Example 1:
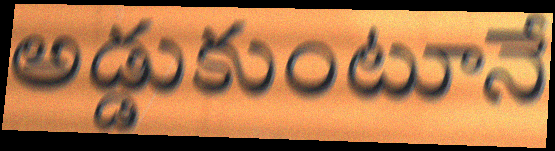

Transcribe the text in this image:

అడ్డుకుంటూనే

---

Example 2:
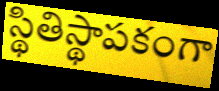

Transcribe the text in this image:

స్థితిస్థాపకంగా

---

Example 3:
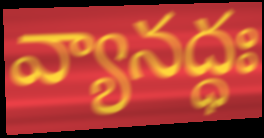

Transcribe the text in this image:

వ్యానద్ధః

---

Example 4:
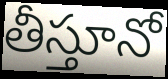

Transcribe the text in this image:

తీస్తూనో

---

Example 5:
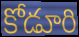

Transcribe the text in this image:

కోడూరి